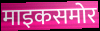
माइकसमोर